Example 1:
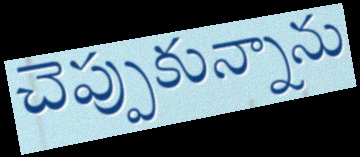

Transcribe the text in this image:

చెప్పుకున్నాను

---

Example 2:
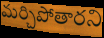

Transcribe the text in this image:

మర్చిపోతారని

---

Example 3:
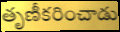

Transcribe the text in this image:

తృణీకరించాడు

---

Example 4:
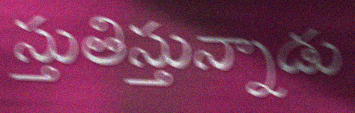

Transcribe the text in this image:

స్తుతిస్తున్నాడు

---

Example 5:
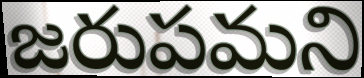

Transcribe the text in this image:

జరుపమని